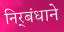
निर्बंधाने